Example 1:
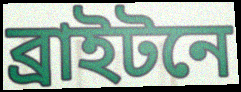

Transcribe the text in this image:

ব্রাইটনে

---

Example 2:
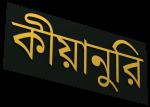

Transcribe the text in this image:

কীয়ানুরি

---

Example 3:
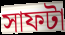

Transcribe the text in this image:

সাফটা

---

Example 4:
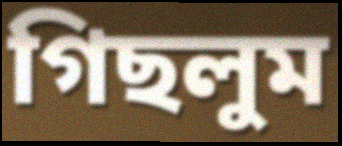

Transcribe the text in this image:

গিছলুম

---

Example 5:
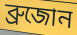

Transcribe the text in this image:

ব্রুজোন